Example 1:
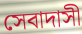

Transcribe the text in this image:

সেবাদাসী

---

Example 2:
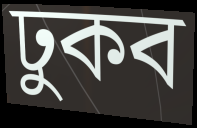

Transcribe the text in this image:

ঢুকব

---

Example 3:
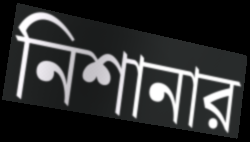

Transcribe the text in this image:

নিশানার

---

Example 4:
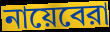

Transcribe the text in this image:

নায়েবেরা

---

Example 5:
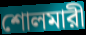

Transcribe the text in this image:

শোলমারী